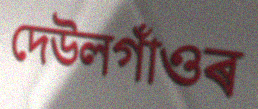
দেউলগাঁওৰ